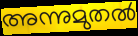
അന്നുമുതൽ